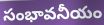
సంభావనీయం